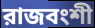
রাজবংশী